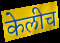
केलीच